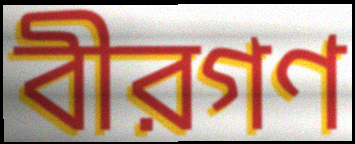
বীরগণ